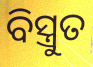
ବିସ୍ତ୍ରୁତ